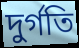
দুৰ্গতি